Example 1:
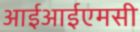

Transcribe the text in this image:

आईआईएमसी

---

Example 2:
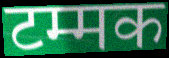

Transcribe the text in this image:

टम्मक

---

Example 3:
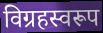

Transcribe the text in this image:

विग्रहस्वरूप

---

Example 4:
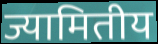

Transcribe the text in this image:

ज्यामितीय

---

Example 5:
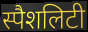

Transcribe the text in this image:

स्पैशलिटी